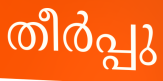
തീർപ്പു